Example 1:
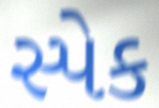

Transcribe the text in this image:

સ્પેક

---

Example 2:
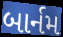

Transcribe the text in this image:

બાર્નમ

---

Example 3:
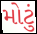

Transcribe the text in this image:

મોટું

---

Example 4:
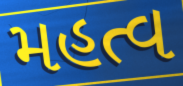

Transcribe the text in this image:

મહત્વ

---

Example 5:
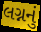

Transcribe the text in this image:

લગ્નનું